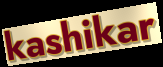
kashikar